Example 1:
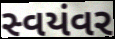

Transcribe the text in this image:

સ્વયંવર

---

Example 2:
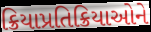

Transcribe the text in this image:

ક્રિયાપ્રતિક્રિયાઓને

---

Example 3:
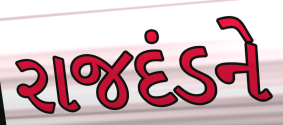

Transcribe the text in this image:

રાજદંડને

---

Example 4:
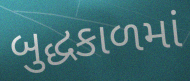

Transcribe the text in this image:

બુદ્ધકાળમાં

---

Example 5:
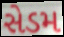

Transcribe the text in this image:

સેડમ